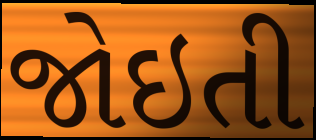
જોઇતી